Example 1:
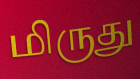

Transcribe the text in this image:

மிருது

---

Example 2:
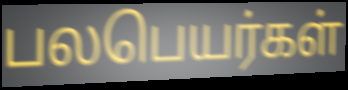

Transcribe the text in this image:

பலபெயர்கள்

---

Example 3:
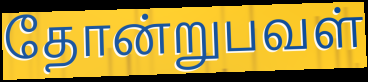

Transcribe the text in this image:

தோன்றுபவள்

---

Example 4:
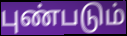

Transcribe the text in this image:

புண்படும்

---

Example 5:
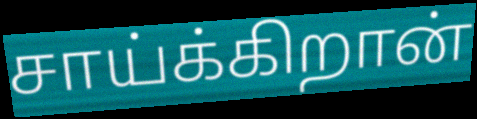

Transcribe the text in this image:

சாய்க்கிறான்